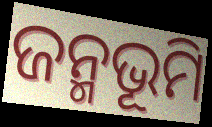
ଜନ୍ମଭୂମି